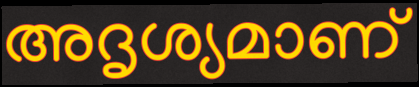
അദൃശ്യമാണ്